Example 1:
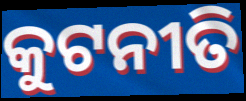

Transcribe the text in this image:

କୁଟନୀତି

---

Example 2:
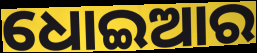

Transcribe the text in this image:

ଧୋଇଆର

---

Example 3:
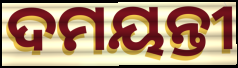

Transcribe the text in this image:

ଦମୟନ୍ତୀ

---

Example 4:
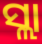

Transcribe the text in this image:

ସ୍ଲା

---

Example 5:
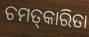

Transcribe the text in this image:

ଚମତ୍‌କାରିତା